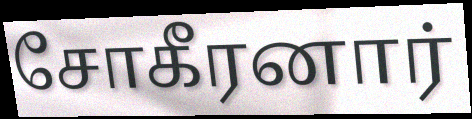
சோகீரனார்